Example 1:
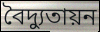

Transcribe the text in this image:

বৈদ্যুতায়ন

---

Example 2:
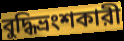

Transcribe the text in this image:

বুদ্ধিভ্রংশকারী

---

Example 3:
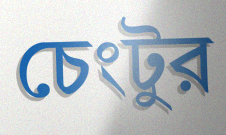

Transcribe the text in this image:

চেংটুর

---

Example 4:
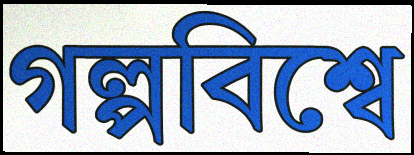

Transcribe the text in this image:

গল্পবিশ্বে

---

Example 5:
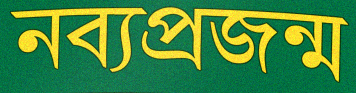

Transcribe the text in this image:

নব্যপ্রজন্ম